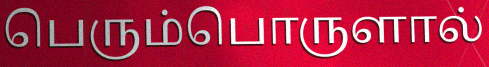
பெரும்பொருளால்